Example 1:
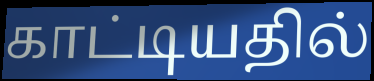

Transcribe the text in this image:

காட்டியதில்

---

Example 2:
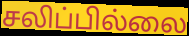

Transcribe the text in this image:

சலிப்பில்லை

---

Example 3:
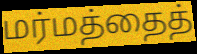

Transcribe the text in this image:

மர்மத்தைத்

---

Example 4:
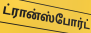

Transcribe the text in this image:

ட்ரான்ஸ்போர்ட்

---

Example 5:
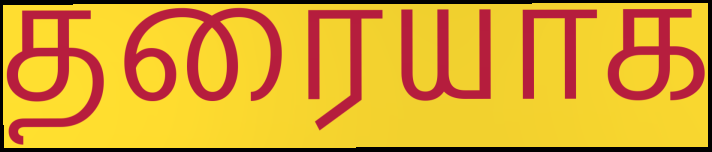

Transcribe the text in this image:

தரையாக